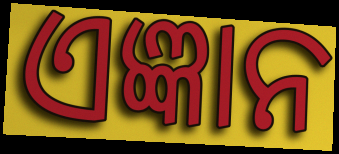
ଏଜ୍ଞାନ